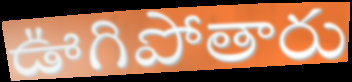
ఊగిపోతారు